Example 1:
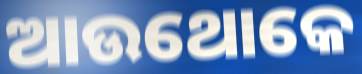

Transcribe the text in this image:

ଆଉଥୋକେ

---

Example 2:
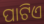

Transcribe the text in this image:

ପାଟିଏ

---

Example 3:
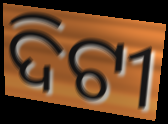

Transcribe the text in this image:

ଦିଟୀ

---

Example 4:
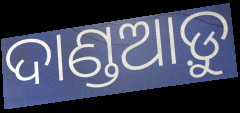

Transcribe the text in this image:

ଦାଣ୍ଡଆଡ଼ୁ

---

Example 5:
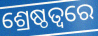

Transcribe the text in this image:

ଶ୍ରେଷ୍ଠତ୍ୱରେ